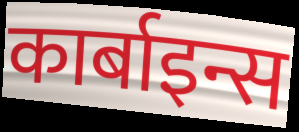
कार्बाइन्स